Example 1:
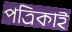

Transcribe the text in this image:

পত্রিকাই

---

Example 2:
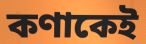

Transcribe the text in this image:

কণাকেই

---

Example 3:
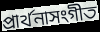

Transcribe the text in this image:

প্রার্থনাসংগীত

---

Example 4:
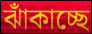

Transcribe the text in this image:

ঝাঁকাচ্ছে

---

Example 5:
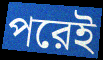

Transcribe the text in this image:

পরেই